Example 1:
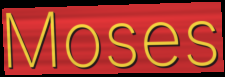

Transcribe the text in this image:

Moses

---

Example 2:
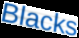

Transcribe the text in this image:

Blacks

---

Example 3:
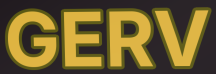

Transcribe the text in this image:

GERV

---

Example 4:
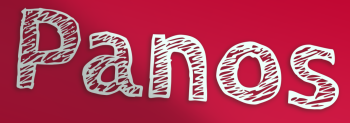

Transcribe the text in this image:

Panos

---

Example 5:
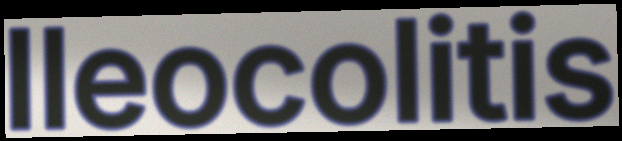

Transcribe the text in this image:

Ileocolitis